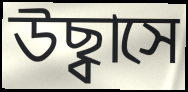
উছ্বাসে